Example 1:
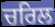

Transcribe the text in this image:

ਚਰਿਲ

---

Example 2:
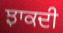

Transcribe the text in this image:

ਝਾਕਦੀ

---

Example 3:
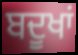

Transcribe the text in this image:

ਬਦੂਖਾਂ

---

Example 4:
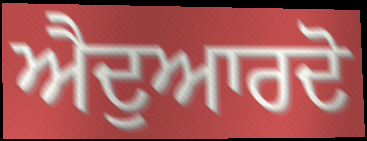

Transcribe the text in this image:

ਐਦੁਆਰਦੋ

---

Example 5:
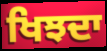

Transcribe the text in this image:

ਖਿਝਦਾ